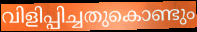
വിളിപ്പിച്ചതുകൊണ്ടും